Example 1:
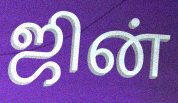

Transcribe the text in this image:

ஜின்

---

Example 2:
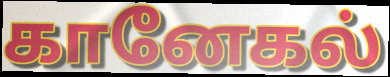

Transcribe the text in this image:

கானேகல்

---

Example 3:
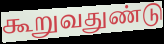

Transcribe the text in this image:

கூறுவதுண்டு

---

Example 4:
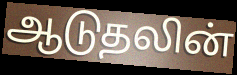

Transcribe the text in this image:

ஆடுதலின்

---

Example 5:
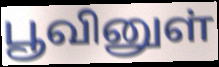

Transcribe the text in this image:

பூவினுள்